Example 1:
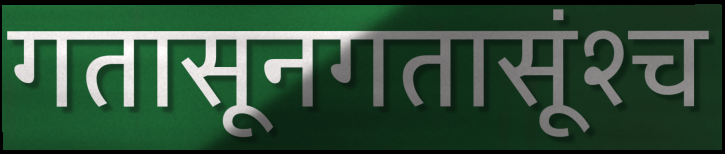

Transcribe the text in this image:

गतासूनगतासूंश्च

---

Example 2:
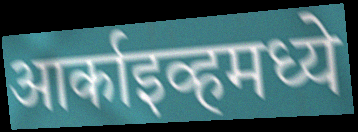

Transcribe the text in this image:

आर्काइव्हमध्ये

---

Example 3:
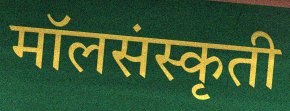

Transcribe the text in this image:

मॉलसंस्कृती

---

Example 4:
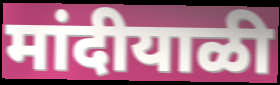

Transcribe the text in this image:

मांदीयाळी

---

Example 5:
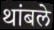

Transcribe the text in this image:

थांबले